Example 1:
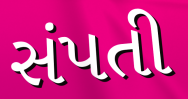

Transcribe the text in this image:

સંપતી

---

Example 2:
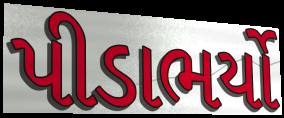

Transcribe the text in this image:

પીડાભર્યો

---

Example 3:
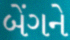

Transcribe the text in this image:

બેંગને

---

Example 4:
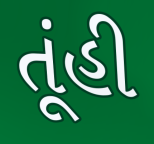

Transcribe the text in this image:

તૂંહી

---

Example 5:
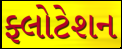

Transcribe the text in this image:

ફ્લોટેશન